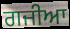
ਗਜੀਆ